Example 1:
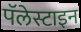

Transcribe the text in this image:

पॅलेस्टाइन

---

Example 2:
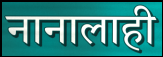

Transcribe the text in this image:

नानालाही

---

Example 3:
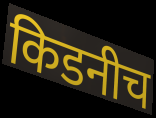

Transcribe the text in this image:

किडनीच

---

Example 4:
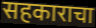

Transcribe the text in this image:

सहकाराचा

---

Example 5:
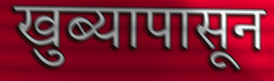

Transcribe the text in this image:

खुब्यापासून